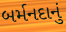
બર્મનદાનું